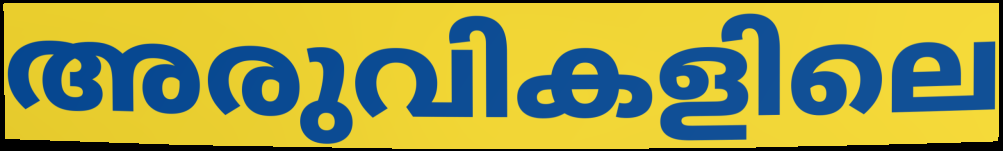
അരുവികളിലെ